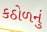
કઠોળનું